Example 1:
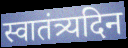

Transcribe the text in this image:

स्वातंत्र्यदिन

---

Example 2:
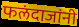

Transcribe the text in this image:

फलंदाजांनी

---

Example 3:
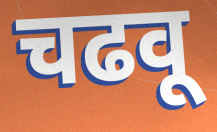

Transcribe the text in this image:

चढवू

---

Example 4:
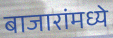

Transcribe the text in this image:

बाजारांमध्ये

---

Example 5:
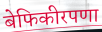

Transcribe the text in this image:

बेफिकीरपणा